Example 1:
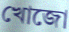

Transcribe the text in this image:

খোজো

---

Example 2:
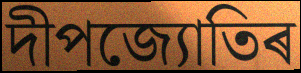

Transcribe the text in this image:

দীপজ্যোতিৰ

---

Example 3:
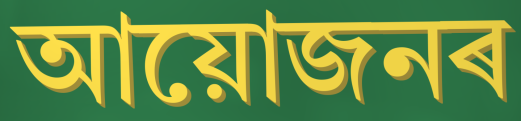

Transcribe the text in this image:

আয়োজনৰ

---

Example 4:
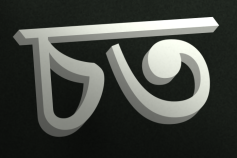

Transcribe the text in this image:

চত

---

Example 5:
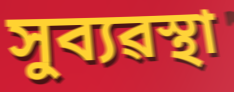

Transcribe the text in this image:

সুব্যৱস্থা